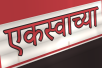
एकस्वाच्या